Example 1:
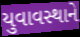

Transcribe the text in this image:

યુવાવસ્થાને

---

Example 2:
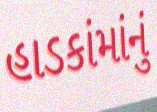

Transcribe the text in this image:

હાડકાંમાંનું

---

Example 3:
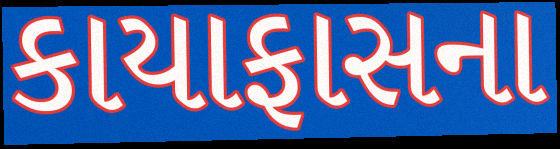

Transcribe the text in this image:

કાયાફાસના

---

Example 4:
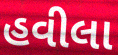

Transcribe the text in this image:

હવીલા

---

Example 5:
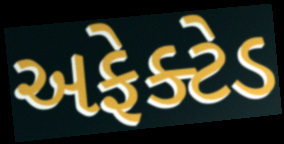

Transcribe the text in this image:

અફેક્ટેડ